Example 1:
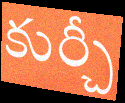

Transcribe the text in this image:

కుర్చీ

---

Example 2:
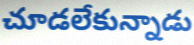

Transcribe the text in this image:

చూడలేకున్నాడు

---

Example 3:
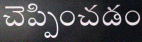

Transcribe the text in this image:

చెప్పించడం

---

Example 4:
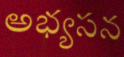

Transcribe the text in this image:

అభ్యసన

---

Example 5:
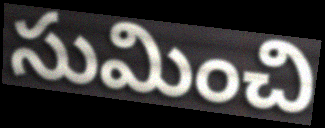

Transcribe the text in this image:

సుమించి